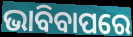
ଭାବିବାପରେ